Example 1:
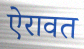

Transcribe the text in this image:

ऐरावत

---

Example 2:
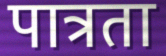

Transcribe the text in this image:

पात्रता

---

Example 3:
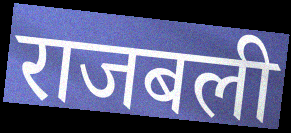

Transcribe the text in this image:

राजबली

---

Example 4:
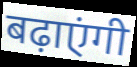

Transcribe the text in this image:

बढ़ाएंगी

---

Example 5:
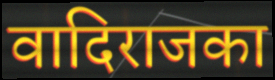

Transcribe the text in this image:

वादिराजका